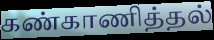
கண்காணித்தல்